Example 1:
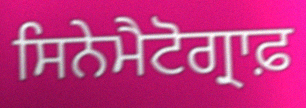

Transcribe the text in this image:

ਸਿਨੇਮੈਟੋਗ੍ਰਾਫ਼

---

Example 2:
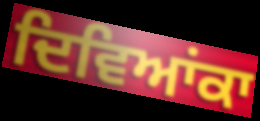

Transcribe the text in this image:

ਦਿਵਿਆਂਕਾ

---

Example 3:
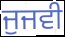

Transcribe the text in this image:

ਜੁਜਵੀ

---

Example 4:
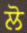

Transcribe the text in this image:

ਲੋ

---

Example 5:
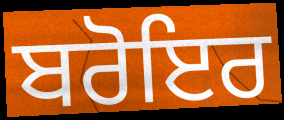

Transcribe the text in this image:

ਬਰੋਇਰ